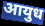
आयुध